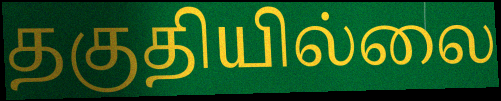
தகுதியில்லை